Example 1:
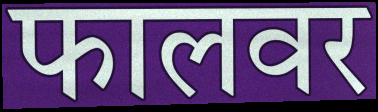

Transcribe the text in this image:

फालवर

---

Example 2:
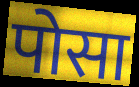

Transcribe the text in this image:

पोसा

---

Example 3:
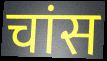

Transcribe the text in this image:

चांस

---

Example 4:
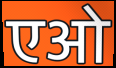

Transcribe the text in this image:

एओ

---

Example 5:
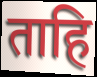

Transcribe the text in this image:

ताहि